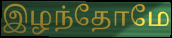
இழந்தோமே